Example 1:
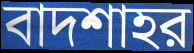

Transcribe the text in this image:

বাদশাহর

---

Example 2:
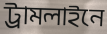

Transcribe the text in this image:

ট্রামলাইনে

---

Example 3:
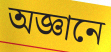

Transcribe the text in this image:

অজ্ঞানে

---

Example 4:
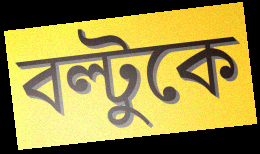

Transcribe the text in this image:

বল্টুকে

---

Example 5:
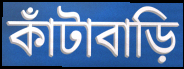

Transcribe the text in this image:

কাঁটাবাড়ি